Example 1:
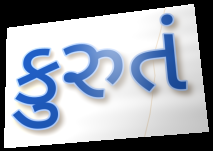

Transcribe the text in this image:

કુરુતં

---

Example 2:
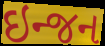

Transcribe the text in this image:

ઇન્જન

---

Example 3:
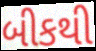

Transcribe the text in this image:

બીકથી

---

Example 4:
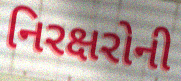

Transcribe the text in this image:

નિરક્ષરોની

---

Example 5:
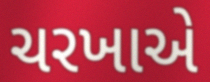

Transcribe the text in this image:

ચરખાએ